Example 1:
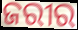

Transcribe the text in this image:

ଜରୀର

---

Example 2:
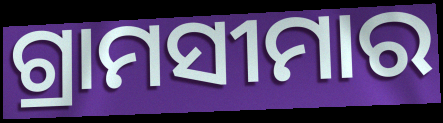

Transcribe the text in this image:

ଗ୍ରାମସୀମାର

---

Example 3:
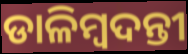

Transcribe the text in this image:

ଡାଳିମ୍ବଦନ୍ତୀ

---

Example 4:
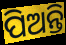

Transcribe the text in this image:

ପିଅନ୍ତି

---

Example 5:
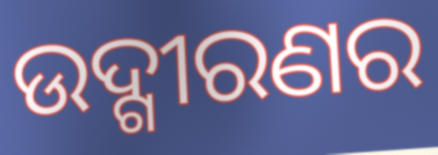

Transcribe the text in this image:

ଉଦ୍ଗୀରଣର